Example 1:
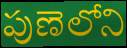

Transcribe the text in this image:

పుణెలోని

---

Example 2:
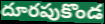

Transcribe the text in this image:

దూరపుకొండ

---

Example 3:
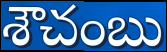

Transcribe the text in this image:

శౌచంబు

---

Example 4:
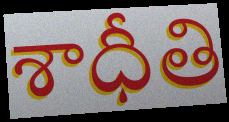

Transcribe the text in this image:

శాధీతి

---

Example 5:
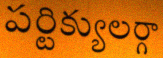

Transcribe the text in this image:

పర్టిక్యులర్గా